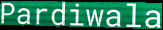
Pardiwala